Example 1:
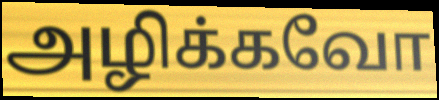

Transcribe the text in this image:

அழிக்கவோ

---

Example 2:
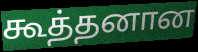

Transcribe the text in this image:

கூத்தனான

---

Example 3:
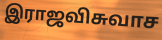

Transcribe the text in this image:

இராஜவிசுவாச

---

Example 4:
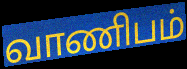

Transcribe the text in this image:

வாணிபம்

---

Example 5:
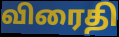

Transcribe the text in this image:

விரைதி